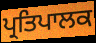
ਪ੍ਰਤਿਪਾਲਕ